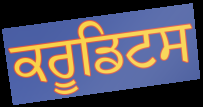
ਕਰੂਡਿਟਸ